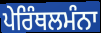
ਪੇਰਿੰਥਲਮੰਨਾ